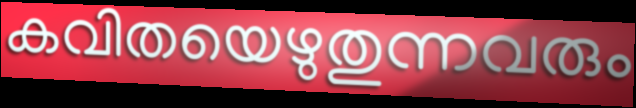
കവിതയെഴുതുന്നവരും